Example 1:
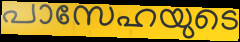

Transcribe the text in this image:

പാസേഹയുടെ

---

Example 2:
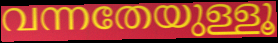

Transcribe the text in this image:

വന്നതേയുള്ളൂ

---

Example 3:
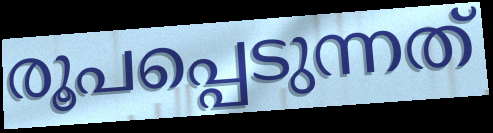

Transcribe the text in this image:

രൂപപ്പെടുന്നത്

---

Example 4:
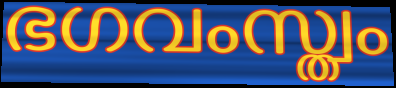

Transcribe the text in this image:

ഭഗവംസ്ത്വം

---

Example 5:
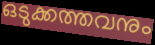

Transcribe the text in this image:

ഒടുക്കത്തവനും